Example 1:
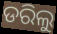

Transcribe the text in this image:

ଡରିଲୁ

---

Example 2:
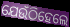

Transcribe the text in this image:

ଯେଉଁଠିହେଲେ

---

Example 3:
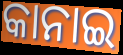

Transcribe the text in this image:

କାନାଇ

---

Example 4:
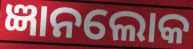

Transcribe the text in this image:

ଜ୍ଞାନଲୋକ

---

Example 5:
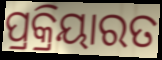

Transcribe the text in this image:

ପ୍ରକ୍ରିୟାରତ